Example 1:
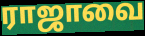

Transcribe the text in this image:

ராஜாவை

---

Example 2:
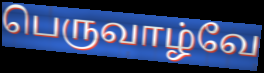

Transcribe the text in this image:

பெருவாழ்வே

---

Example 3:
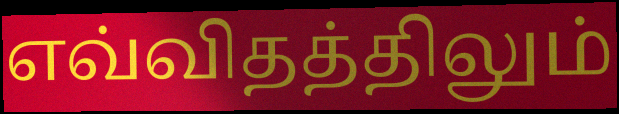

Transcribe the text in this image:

எவ்விதத்திலும்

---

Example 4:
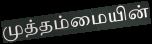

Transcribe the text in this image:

முத்தம்மையின்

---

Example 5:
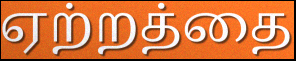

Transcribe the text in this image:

ஏற்றத்தை